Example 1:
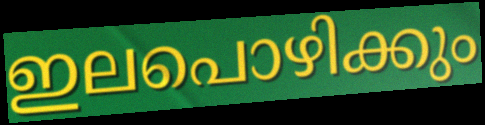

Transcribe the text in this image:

ഇലപൊഴിക്കും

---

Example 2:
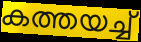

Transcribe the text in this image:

കത്തയച്ച്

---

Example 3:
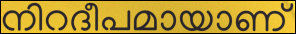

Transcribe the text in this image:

നിറദീപമായാണ്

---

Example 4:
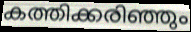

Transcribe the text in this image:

കത്തിക്കരിഞ്ഞും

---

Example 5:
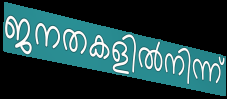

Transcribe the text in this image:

ജനതകളിൽനിന്ന്